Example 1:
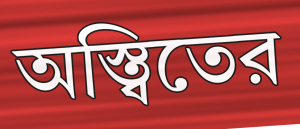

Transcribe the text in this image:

অস্ত্বিতের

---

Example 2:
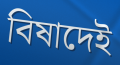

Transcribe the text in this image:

বিষাদেই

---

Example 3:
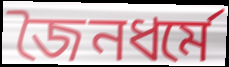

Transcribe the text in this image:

জৈনধর্মে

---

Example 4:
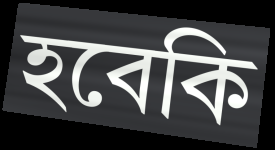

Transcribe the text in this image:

হবেকি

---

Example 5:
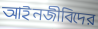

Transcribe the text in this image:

আইনজীবিদের